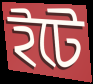
ইটে